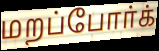
மறப்போர்க்